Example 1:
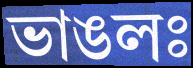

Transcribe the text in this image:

ভাঙলঃ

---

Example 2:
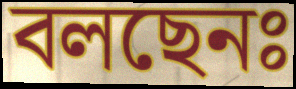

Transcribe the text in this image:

বলছেনঃ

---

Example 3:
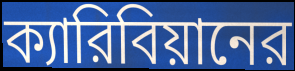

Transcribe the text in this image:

ক্যারিবিয়ানের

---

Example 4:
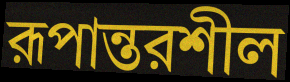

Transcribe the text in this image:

রূপান্তরশীল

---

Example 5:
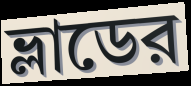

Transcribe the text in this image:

ভ্লাডের